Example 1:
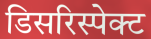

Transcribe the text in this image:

डिसरिस्पेक्ट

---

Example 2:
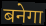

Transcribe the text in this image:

बनेगा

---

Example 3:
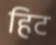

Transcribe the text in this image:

हिट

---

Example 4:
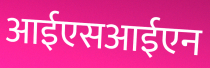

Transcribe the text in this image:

आईएसआईएन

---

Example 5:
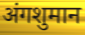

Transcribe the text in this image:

अंगशुमान